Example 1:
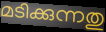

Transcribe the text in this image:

മടിക്കുന്നതു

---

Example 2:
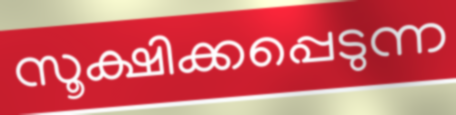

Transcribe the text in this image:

സൂക്ഷിക്കപ്പെടുന്ന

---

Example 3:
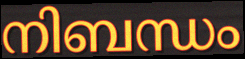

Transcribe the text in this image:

നിബന്ധം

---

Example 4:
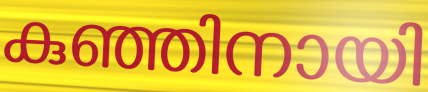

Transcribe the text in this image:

കുഞ്ഞിനായി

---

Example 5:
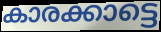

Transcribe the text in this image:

കാരക്കാട്ടെ